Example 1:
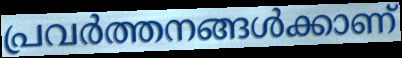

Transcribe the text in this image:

പ്രവർത്തനങ്ങൾക്കാണ്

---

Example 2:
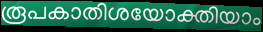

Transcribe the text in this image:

രൂപകാതിശയോക്തിയാം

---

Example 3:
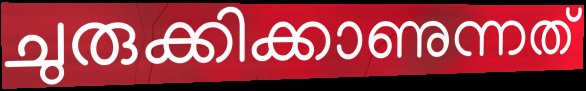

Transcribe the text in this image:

ചുരുക്കിക്കാണുന്നത്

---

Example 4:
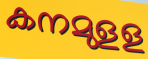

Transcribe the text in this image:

കനമുളള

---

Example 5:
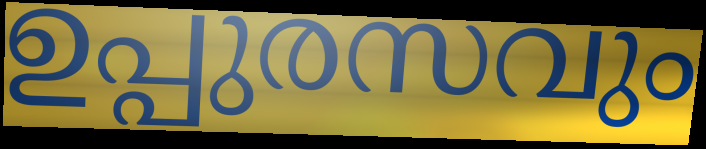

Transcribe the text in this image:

ഉപ്പുരസവും